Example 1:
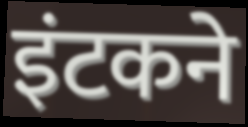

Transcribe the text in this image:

इंटकने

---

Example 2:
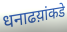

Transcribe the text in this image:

धनाढय़ांकडे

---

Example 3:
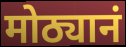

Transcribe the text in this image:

मोठ्यानं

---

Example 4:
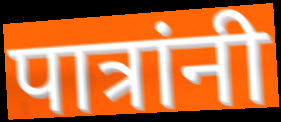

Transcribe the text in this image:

पात्रांनी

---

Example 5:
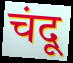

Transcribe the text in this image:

चंदू